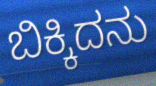
ಬಿಕ್ಕಿದನು